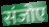
संजोए